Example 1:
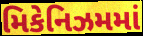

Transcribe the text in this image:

મિકેનિઝમમાં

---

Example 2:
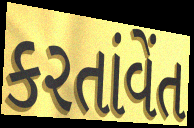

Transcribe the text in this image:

કરતાંવેંત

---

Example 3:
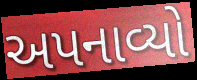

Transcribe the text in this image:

અપનાવ્યો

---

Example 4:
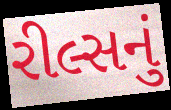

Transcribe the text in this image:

રીલ્સનું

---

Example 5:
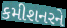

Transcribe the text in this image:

કમીશનરને